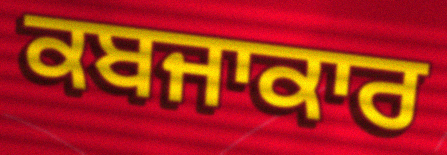
ਕਬਜਾਕਾਰ